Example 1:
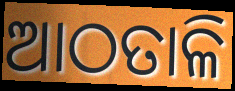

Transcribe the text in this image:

ଆଠତାଳି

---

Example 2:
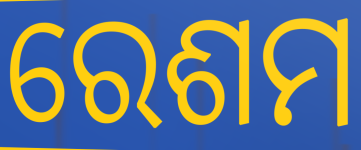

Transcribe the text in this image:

ରେଶମ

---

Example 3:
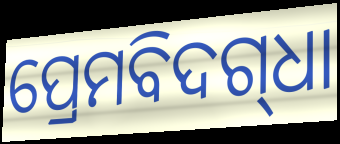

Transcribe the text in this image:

ପ୍ରେମବିଦଗ୍‍ଧା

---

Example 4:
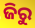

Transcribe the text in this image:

ଜିରୁ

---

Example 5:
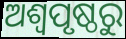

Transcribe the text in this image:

ଅଶ୍ଵପୃଷ୍ଠରୁ